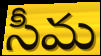
సీమ